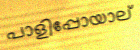
പാളിപ്പോയാല്